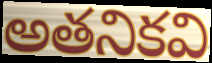
అతనికవి